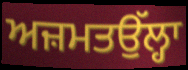
ਅਜ਼ਮਤਉੱਲ੍ਹਾ